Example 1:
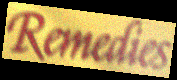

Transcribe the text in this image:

Remedies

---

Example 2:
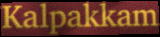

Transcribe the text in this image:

Kalpakkam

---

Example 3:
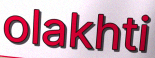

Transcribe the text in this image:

olakhti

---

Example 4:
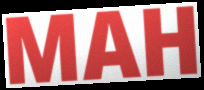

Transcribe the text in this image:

MAH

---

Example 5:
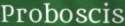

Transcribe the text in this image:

Proboscis